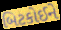
બિટકોઈને